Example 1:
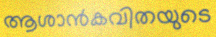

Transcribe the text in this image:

ആശാൻകവിതയുടെ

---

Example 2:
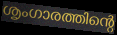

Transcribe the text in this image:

ശൃംഗാരത്തിന്റെ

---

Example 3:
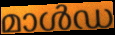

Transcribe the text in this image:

മാൾഡ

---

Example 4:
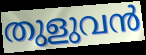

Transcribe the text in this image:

തുളുവൻ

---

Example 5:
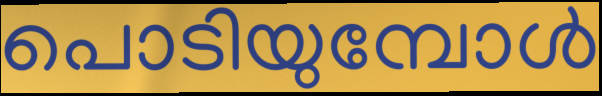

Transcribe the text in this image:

പൊടിയുമ്പോൾ